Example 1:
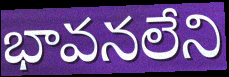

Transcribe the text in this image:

భావనలేని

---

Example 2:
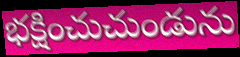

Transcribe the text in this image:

భక్షించుచుండును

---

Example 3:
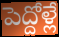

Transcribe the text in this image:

పెద్దోళ్లే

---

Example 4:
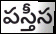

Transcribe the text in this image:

పస్తీస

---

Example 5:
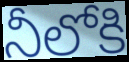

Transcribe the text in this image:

నీలోకి